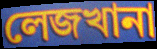
লেজখানা